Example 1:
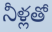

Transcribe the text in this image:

నీళ్లతో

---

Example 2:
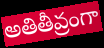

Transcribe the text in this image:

అతితీవ్రంగా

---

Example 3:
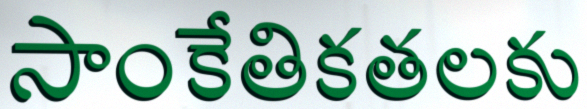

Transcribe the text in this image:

సాంకేతికతలకు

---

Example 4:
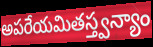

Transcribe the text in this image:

అపరేయమితస్త్వన్యాం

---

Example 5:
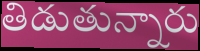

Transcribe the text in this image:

తిడుతున్నారు